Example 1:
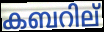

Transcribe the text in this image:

കബറില്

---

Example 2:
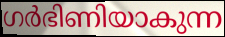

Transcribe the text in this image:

ഗർഭിണിയാകുന്ന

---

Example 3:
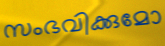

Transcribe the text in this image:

സംഭവിക്കുമോ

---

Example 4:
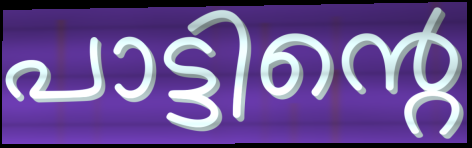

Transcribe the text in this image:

പാട്ടിന്റെ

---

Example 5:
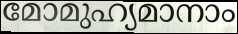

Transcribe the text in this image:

മോമുഹ്യമാനാം